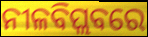
ନୀଳବିପ୍ଲବରେ